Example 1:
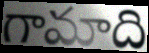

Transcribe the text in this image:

గామాది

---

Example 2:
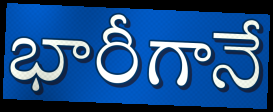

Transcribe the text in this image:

భారీగానే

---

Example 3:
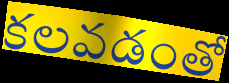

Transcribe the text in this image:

కలవడంతో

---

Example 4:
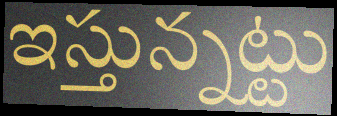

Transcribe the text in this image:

ఇస్తున్నట్టు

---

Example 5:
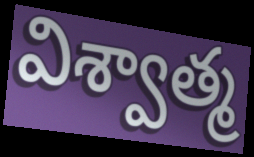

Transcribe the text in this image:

విశ్వాత్మ